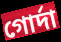
গোর্দা